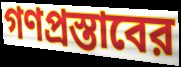
গণপ্রস্তাবের